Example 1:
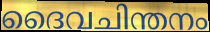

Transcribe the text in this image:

ദൈവചിന്തനം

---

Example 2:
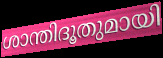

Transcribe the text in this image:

ശാന്തിദൂതുമായി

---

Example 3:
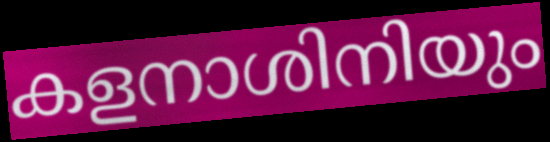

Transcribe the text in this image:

കളനാശിനിയും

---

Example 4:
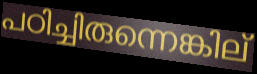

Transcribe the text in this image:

പഠിച്ചിരുന്നെങ്കില്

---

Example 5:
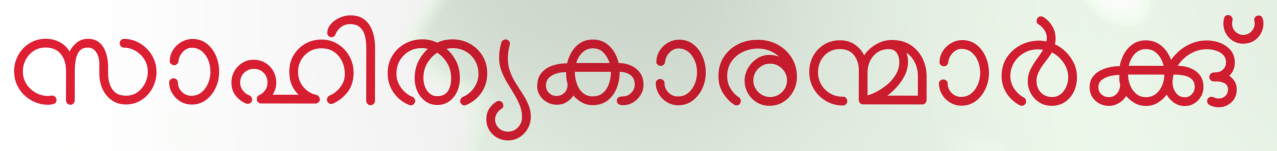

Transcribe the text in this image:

സാഹിത്യകാരന്മാർക്കു്